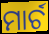
ମାର୍ଚ